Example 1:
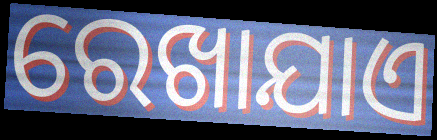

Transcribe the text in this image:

ରେଖାଯାଏ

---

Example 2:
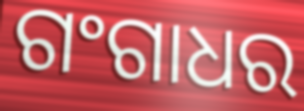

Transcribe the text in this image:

ଗଂଗାଧର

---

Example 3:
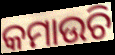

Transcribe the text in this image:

କମାଉଚି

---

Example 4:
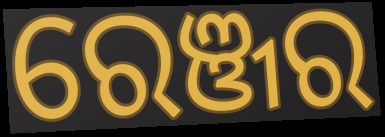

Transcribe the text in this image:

ରେଞ୍ଜର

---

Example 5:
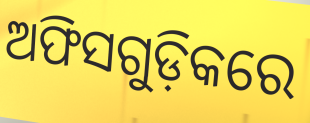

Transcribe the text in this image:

ଅଫିସଗୁଡ଼ିକରେ